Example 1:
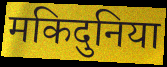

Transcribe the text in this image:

मकिदुनिया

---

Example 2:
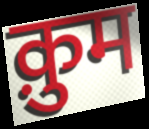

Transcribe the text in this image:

क़ुम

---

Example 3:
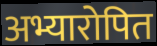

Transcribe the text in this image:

अभ्यारोपित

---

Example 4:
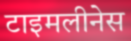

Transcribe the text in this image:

टाइमलीनेस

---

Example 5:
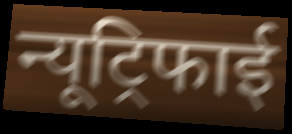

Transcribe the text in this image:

न्यूट्रिफाई